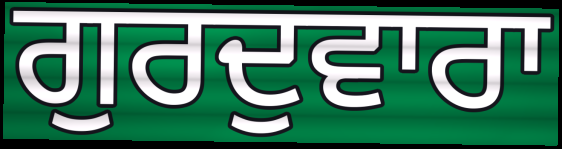
ਗੁਰਦੁਵਾਰਾ